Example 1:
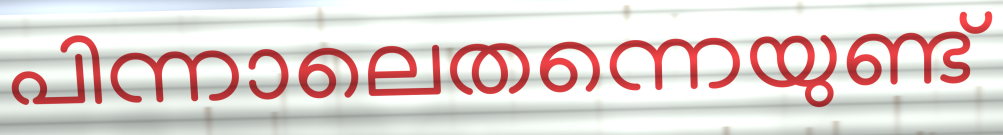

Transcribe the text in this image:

പിന്നാലെതന്നെയുണ്ട്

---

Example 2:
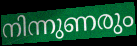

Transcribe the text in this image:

നിന്നുണരും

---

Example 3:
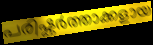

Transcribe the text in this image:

പരിഷ്കർത്താക്കളായ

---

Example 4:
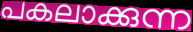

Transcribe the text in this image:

പകലാക്കുന്ന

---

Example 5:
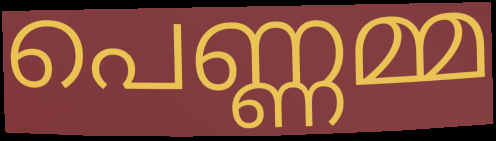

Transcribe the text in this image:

പെണ്ണമ്മ